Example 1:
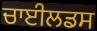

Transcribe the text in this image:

ਚਾਈਲਡਸ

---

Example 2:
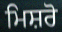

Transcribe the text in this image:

ਮਿਸ਼ਰੋ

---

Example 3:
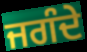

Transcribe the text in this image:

ਜਗੰਦੇ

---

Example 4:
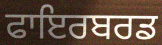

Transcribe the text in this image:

ਫਾਇਰਬਰਡ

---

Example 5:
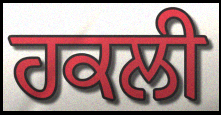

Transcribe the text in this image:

ਹਕਲੀ